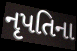
નૃપતિના